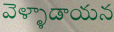
వెళ్ళాడాయన